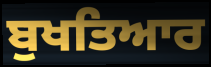
ਬੁਖਤਿਆਰ